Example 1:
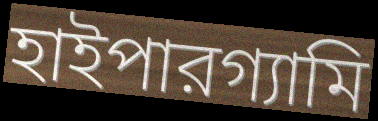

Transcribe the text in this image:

হাইপারগ্যামি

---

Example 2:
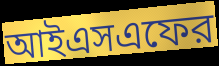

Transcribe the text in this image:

আইএসএফের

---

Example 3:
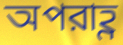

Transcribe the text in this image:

অপরাহ্ণ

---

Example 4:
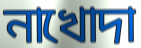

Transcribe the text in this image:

নাখোদা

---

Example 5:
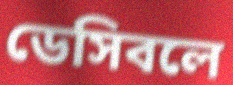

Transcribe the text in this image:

ডেসিবলে